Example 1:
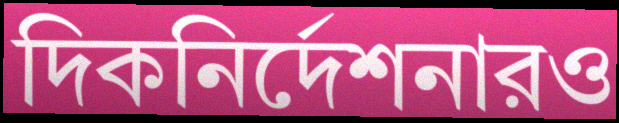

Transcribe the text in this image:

দিকনির্দেশনারও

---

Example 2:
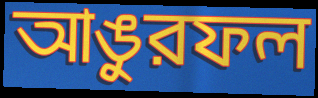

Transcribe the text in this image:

আঙুরফল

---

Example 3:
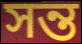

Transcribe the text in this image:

সন্ত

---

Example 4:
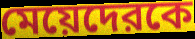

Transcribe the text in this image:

মেয়েদেরকে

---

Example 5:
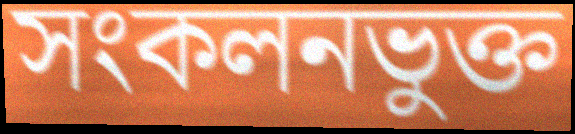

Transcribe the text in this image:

সংকলনভুক্ত